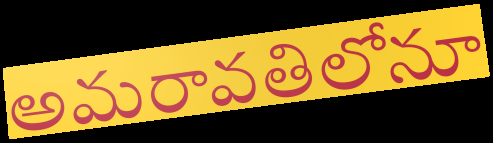
అమరావతిలోనూ